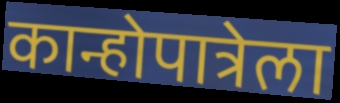
कान्होपात्रेला